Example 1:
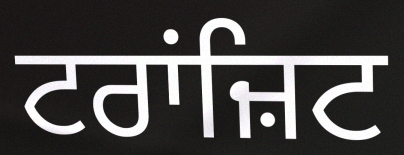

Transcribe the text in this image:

ਟਰਾਂਜ਼ਿਟ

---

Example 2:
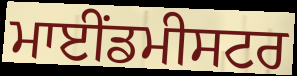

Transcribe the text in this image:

ਮਾਈਂਡਮੀਸਟਰ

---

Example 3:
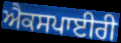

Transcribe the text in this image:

ਐਕਸਪਾਈਰੀ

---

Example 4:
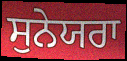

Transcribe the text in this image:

ਸੁਨੇਯਰਾ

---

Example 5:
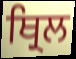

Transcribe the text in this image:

ਥ੍ਰਿਲ